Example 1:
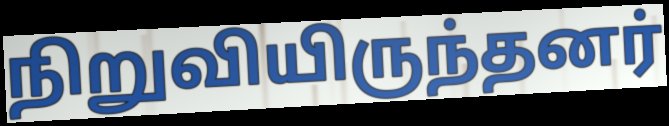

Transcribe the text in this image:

நிறுவியிருந்தனர்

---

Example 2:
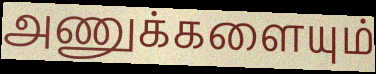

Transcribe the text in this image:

அணுக்களையும்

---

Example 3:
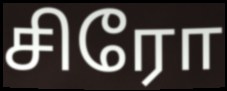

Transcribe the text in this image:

சிரோ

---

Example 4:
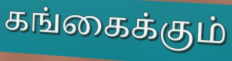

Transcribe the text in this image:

கங்கைக்கும்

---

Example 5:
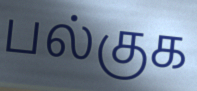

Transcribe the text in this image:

பல்குக